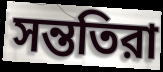
সন্ততিরা